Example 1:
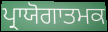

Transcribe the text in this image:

ਪ੍ਰਾਯੋਗਾਤਮਕ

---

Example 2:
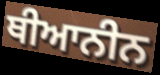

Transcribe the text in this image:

ਥੀਆਨੀਨ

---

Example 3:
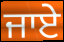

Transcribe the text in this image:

ਜਾਏੇ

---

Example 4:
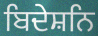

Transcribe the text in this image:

ਬਿਦੇਸ਼ਨਿ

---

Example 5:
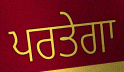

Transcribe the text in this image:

ਪਰਤੇਗਾ